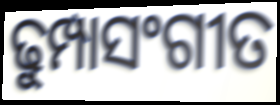
ଢୁମ୍ପାସଂଗୀତ